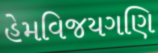
હેમવિજયગણિ